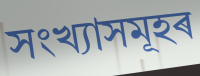
সংখ্যাসমূহৰ